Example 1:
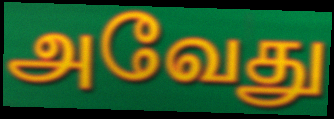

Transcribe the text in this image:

அவேது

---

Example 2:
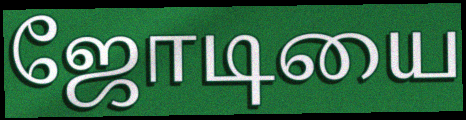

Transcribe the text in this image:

ஜோடியை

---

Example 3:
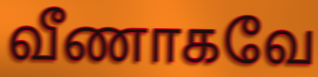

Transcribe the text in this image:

வீணாகவே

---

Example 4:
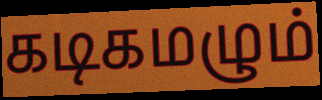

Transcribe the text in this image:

கடிகமழும்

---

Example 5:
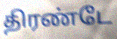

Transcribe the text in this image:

திரண்டே